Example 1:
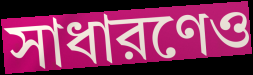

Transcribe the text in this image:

সাধারণেও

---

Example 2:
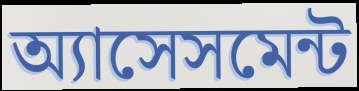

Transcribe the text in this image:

অ্যাসেসমেন্ট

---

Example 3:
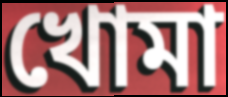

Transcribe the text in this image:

খোমা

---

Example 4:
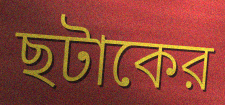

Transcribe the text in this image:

ছটাকের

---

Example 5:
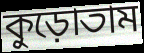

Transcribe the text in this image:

কুড়োতাম